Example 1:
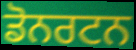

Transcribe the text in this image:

ਡੋਨਰਟਨ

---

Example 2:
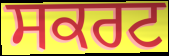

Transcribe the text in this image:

ਸਕਰਟ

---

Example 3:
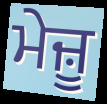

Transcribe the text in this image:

ਮੇਜ਼ੂ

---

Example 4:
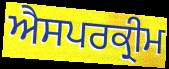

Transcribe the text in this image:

ਐਸਪਰਕ੍ਰੀਮ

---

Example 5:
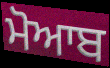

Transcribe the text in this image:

ਮੋਆਬ